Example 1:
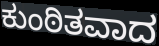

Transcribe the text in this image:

ಕುಂಠಿತವಾದ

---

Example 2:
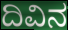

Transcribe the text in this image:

ದಿವಿನ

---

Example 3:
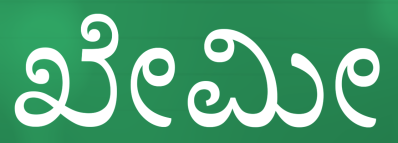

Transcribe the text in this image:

ಖೇಮೀ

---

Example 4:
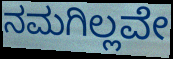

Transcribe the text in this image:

ನಮಗಿಲ್ಲವೇ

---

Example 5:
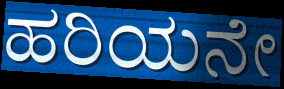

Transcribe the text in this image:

ಹರಿಯನೇ